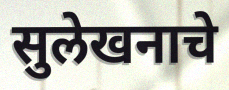
सुलेखनाचे